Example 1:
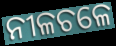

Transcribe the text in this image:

ନୀଳଚଳେ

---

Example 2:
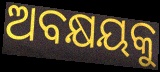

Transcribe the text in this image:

ଅବକ୍ଷୟକୁ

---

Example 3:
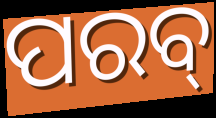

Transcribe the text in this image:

ପରବ୍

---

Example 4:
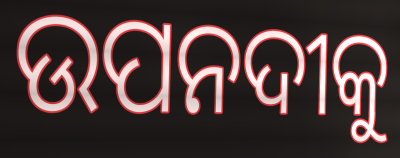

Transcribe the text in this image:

ଉପନଦୀକୁ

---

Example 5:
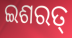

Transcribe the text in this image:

ଇଶରତ୍